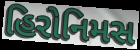
હિરોનિમસ